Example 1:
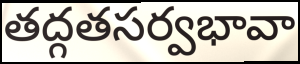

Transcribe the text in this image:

తద్గతసర్వభావా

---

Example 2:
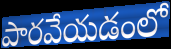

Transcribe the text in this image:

పారవేయడంలో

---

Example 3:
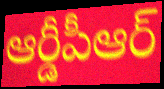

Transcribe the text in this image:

ఆర్డీపీఆర్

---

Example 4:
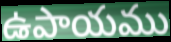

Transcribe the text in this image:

ఉపాయము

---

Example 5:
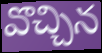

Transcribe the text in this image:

వొచ్చిన